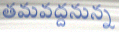
తమవద్దనున్న